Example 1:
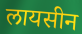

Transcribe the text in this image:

लायसीन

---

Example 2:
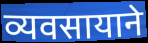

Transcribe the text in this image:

व्यवसायाने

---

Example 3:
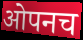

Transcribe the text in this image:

ओपनच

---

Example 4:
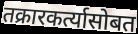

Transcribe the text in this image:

तक्रारकर्त्यासोबत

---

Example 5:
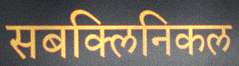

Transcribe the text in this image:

सबक्लिनिकल